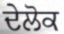
ਦੇਲੋਕ